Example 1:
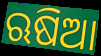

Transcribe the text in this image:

ଋଷିଆ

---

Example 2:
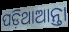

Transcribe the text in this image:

ପଡ଼ିଥାଆନ୍ତା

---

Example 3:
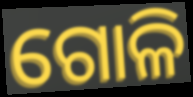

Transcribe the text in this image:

ଗୋଳି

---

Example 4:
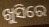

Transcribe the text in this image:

ଖୁସିରେ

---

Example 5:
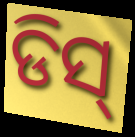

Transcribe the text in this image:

ଡିସ୍